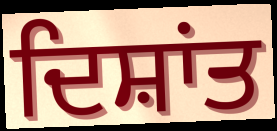
ਦਿਸ਼ਾਂਤ